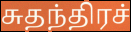
சுதந்திரச்